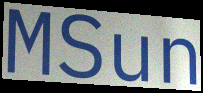
MSun